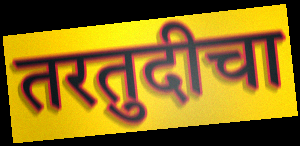
तरतुदीचा